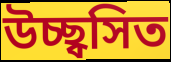
উচ্ছ্বসিত